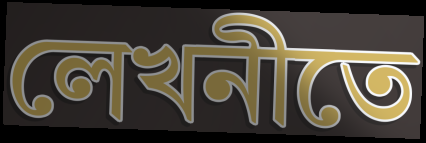
লেখনীতে